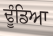
ਢੂੰਡਿਆ